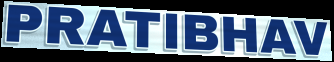
PRATIBHAV